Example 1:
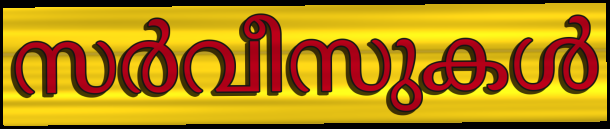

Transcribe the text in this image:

സർവീസുകൾ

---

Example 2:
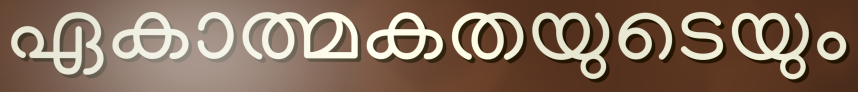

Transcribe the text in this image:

ഏകാത്മകതയുടെയും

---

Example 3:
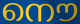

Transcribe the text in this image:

നൌ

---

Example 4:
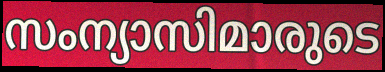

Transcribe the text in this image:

സംന്യാസിമാരുടെ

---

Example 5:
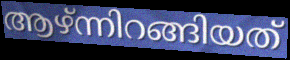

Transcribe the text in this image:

ആഴ്ന്നിറങ്ങിയത്